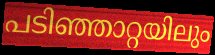
പടിഞ്ഞാറ്റയിലും